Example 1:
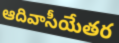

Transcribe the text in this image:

ఆదివాసీయేతర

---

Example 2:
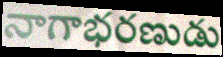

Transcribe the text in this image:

నాగాభరణుడు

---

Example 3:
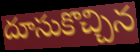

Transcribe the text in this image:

దూసుకొచ్చిన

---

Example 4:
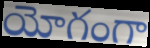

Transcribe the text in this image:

యోగంగా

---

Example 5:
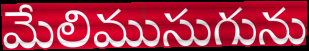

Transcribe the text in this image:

మేలిముసుగును